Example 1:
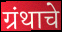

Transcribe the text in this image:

ग्रंथाचे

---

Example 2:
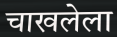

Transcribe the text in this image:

चाखलेला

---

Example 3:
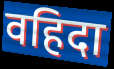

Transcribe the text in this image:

वहिदा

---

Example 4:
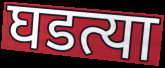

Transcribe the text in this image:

घडत्या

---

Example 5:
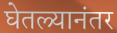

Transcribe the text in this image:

घेतल्यानंतर